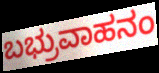
ಬಭ್ರುವಾಹನಂ